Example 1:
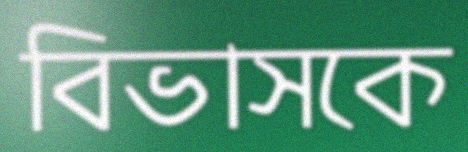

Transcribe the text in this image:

বিভাসকে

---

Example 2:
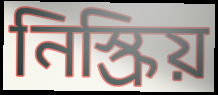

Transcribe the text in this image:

নিস্ক্রিয়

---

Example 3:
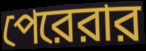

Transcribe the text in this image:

পেরেরার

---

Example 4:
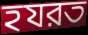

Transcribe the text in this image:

হযরত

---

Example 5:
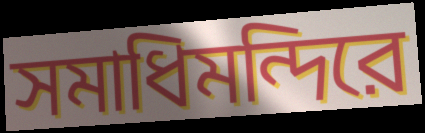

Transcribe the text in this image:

সমাধিমন্দিরে